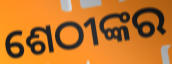
ଶେଠୀଙ୍କର